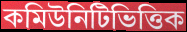
কমিউনিটিভিত্তিক